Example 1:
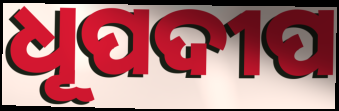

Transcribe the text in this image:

ଧୂପଦୀପ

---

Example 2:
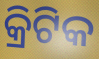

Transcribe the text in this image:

କ୍ରିଟିକ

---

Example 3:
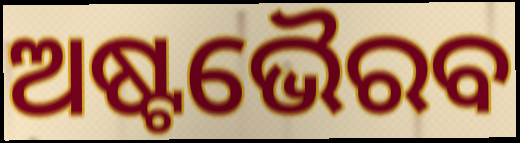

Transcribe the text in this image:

ଅଷ୍ଟଭୈରବ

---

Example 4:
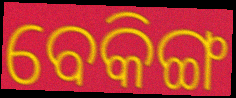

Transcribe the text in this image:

ବେକିଙ୍ଗ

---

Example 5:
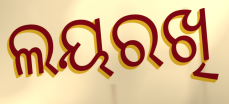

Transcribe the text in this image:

ଲୟରଖି